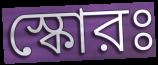
স্কোরঃ